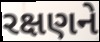
રક્ષણને